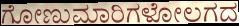
ಗೋಣುಮಾರಿಗಳೋಲಗದ